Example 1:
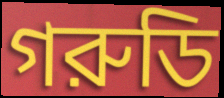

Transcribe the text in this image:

গরুডি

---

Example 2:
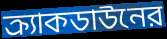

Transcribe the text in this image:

ক্র্যাকডাউনের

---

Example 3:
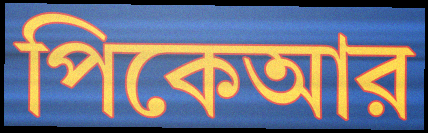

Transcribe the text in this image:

পিকেআর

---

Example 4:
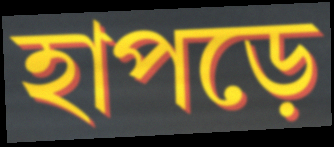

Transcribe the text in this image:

হাপড়ে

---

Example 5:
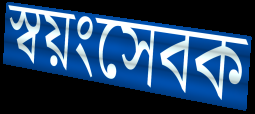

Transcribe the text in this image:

স্বয়ংসেবক